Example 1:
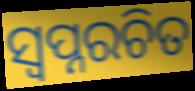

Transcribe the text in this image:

ସ୍ୱପ୍ନରଚିତ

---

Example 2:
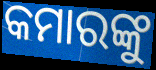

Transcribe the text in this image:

କମାରଙ୍କୁ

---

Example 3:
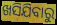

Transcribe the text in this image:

ଖସିଯିବାରୁ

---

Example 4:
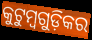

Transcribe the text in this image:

କୁଟୁମ୍ବଗୁଡ଼ିକର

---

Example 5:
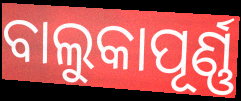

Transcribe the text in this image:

ବାଲୁକାପୂର୍ଣ୍ଣ